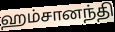
ஹம்சானந்தி